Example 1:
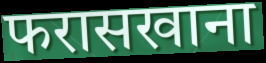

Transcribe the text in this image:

फरासखाना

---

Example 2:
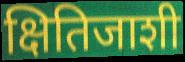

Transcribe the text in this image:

क्षितिजाशी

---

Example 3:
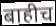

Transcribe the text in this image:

बाहीच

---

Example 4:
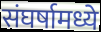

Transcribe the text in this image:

संघर्षामध्ये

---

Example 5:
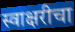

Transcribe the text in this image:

स्वाक्षरीचा